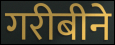
गरीबीने